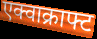
एक्वाक्राफ्ट